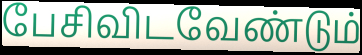
பேசிவிடவேண்டும்